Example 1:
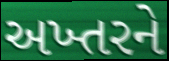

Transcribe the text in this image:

અખ્તરને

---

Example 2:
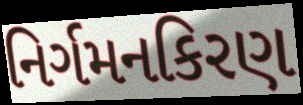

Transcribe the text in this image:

નિર્ગમનકિરણ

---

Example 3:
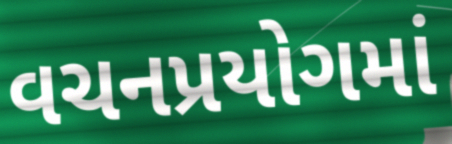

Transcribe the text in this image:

વચનપ્રયોગમાં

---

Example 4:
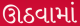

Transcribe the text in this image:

ઊઠવામાં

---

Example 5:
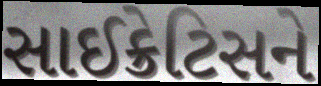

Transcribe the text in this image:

સાઈક્રેટિસને